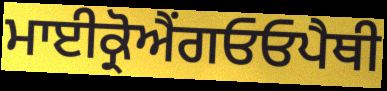
ਮਾਈਕ੍ਰੋਐਂਗਓਓਪੈਥੀ